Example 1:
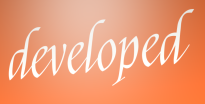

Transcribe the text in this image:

developed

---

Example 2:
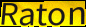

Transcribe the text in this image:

Raton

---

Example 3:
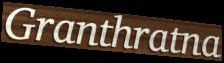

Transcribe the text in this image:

Granthratna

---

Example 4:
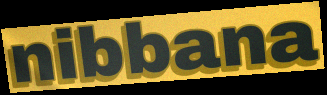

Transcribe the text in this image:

nibbana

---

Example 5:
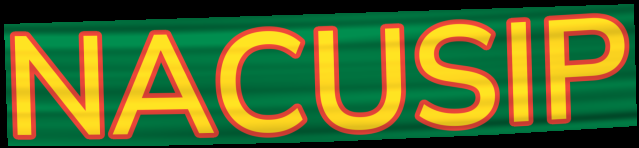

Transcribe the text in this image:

NACUSIP